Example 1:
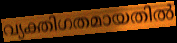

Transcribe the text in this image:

വ്യക്തിഗതമായതിൽ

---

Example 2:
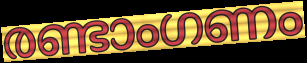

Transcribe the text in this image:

രണ്ടാംഗണം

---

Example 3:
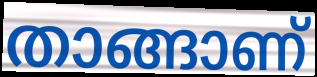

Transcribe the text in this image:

താങ്ങാണ്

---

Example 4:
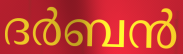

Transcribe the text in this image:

ദർബൻ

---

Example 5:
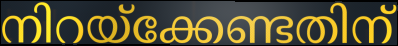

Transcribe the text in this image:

നിറയ്ക്കേണ്ടതിന്